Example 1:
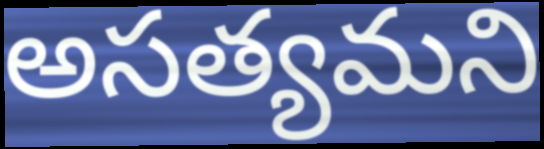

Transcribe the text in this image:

అసత్యమని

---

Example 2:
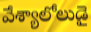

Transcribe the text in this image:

వేశ్యాలోలుడై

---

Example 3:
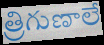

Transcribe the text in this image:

త్రిగుణాలే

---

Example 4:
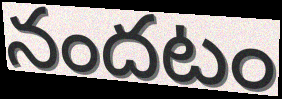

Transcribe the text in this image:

నందటం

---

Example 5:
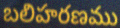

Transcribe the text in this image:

బలిహరణము